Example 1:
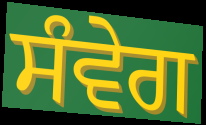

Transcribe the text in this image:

ਸੰਵੇਗ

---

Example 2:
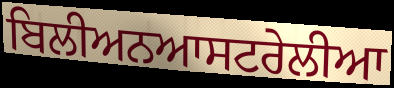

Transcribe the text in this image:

ਬਿਲੀਅਨਆਸਟਰੇਲੀਆ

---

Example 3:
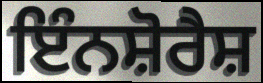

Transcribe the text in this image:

ਇੰਨਸ਼ੋਰੈਸ਼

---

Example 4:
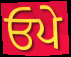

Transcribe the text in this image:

ਓਪੇ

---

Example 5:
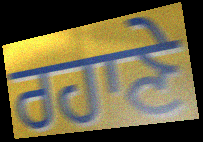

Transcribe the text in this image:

ਰਹਾਣੇ